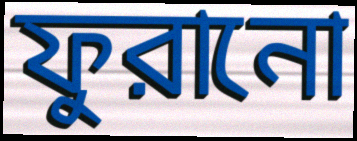
ফুরানো